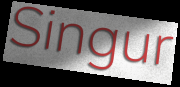
Singur